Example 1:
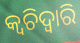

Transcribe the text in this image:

କ୍ଵଚିଦ୍ୱାରି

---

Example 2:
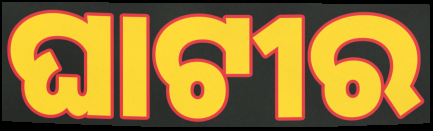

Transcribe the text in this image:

ଘାଟୀର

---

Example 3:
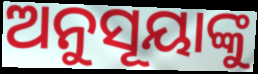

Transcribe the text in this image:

ଅନୁସୂୟାଙ୍କୁ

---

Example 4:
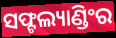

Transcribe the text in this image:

ସଫ୍ଟଲ୍ୟାଣ୍ଡିଂର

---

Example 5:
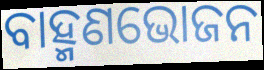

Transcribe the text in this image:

ବାହ୍ମଣଭୋଜନ